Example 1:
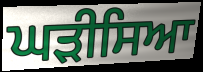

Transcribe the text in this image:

ਘੜੀਸਿਆ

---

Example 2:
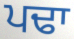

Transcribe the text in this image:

ਪਢਾ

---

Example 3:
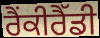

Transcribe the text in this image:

ਰੈਂਕੀਰੈੱਡੀ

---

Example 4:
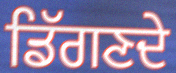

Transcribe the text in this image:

ਡਿੱਗਣਦੇ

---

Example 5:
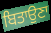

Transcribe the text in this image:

ਬਿਤਾਉਣਾ